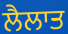
ਲੈਲਾਤ